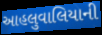
આહલુવાલિયાની